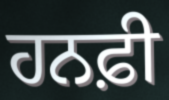
ਹਨਫ਼ੀ